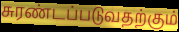
சுரண்டப்படுவதற்கும்